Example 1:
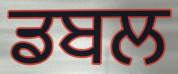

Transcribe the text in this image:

ਡਬਲ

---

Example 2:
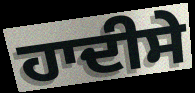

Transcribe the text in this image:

ਹਾਦੀਸੇ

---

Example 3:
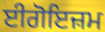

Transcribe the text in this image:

ਈਗੋਇਜ਼ਮ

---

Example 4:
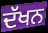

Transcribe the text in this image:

ਦੱਖਨ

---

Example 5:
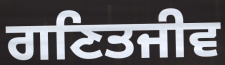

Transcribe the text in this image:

ਗਣਿਤਜੀਵ